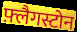
फ़्लैगस्टोन